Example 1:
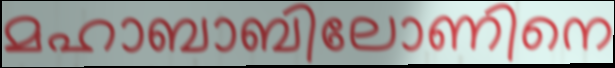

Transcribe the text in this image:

മഹാബാബിലോണിനെ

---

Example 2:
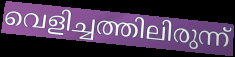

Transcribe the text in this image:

വെളിച്ചത്തിലിരുന്ന്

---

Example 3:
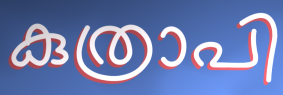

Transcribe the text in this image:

കുത്രാപി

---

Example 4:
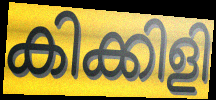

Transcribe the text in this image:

കിക്കിളി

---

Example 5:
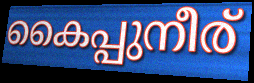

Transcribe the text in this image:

കൈപ്പുനീര്